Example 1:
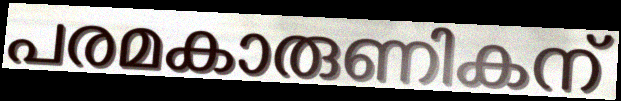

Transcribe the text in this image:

പരമകാരുണികന്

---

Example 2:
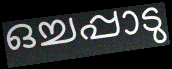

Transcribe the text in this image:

ഒച്ചപ്പാടു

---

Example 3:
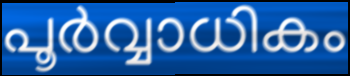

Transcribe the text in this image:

പൂർവ്വാധികം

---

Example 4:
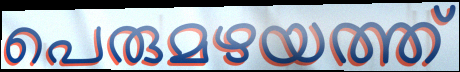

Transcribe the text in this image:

പെരുമഴയത്ത്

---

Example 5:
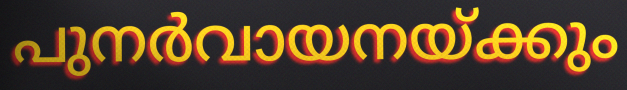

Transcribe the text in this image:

പുനർവായനയ്ക്കും